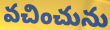
వచించును